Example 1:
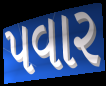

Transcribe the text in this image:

પવાર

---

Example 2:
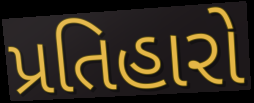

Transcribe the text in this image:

પ્રતિહારો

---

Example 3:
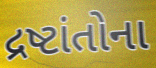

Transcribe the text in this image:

દ્રષ્ટાંતોના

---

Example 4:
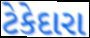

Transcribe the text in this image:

ટેકેદારા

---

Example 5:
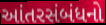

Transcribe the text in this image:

આંતરસંબંધનો